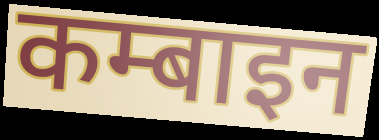
कम्बाइन